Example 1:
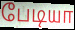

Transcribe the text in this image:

பேடியா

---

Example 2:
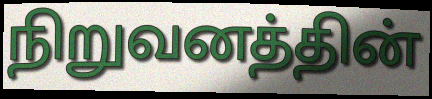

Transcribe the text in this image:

நிறுவனத்தின்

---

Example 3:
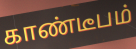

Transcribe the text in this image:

காண்டீபம்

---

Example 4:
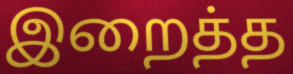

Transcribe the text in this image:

இறைத்த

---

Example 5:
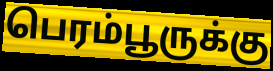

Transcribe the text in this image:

பெரம்பூருக்கு